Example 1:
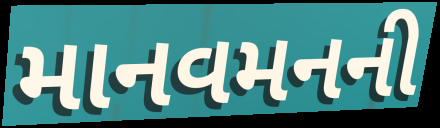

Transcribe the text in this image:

માનવમનની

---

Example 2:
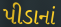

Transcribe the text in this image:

પીડાનાં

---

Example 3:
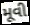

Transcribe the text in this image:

મૂવી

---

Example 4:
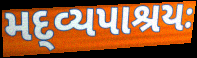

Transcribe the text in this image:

મદ્વ્યપાશ્રયઃ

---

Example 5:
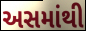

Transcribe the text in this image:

અસમાંથી